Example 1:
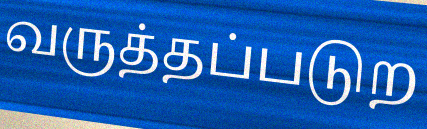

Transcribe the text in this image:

வருத்தப்படுற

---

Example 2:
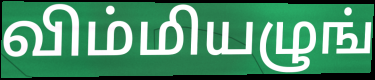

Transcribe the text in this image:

விம்மியழுங்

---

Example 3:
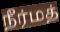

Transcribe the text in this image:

நீர்மத்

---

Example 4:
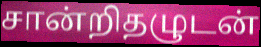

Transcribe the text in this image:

சான்றிதழுடன்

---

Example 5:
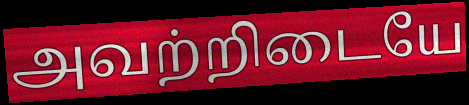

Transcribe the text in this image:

அவற்றிடையே